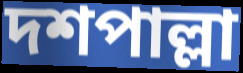
দশপাল্লা